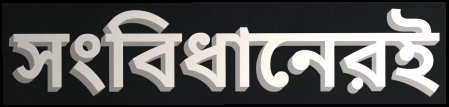
সংবিধানেরই